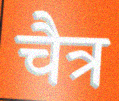
चैत्र